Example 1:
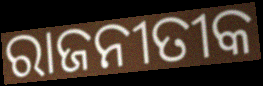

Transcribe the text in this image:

ରାଜନୀତୀକ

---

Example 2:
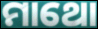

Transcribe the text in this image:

ମାଥୋ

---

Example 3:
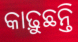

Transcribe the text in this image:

କାଢ଼ୁଛନ୍ତି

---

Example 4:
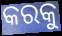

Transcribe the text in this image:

କରକୁ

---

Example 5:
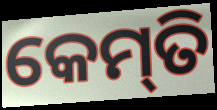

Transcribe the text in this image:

କେମ୍‍ତି